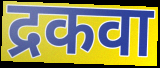
द्रकवा